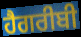
ਹੈਗਰੀਬੀ